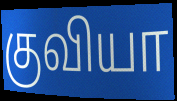
குவியா